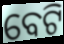
ବେଟି